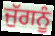
ਜੁੱਗਨੂੰ